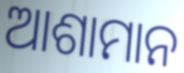
ଆଶାମାନ